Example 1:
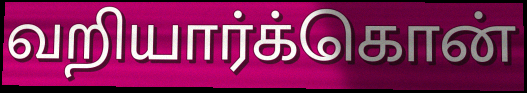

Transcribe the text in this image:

வறியார்க்கொன்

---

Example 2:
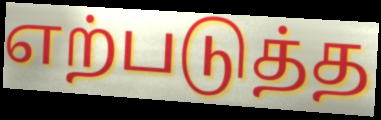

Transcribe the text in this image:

எற்படுத்த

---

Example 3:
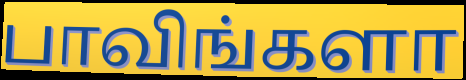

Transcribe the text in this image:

பாவிங்களா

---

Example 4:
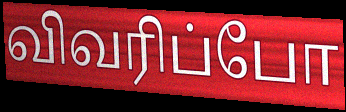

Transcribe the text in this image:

விவரிப்போ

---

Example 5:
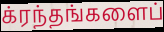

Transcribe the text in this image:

க்ரந்தங்களைப்